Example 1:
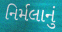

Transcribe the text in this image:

નિર્મલાનું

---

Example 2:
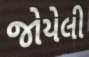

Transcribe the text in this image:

જોયેલી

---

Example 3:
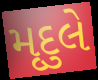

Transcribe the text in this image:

મૃદુલે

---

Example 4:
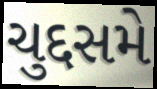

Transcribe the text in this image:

ચુદ્દસમે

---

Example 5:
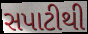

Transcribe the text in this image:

સપાટીથી